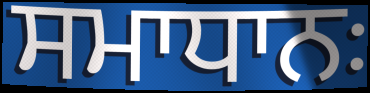
ਸਮਾਧਾਨਃ